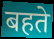
बहते